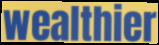
wealthier